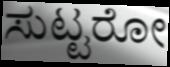
ಸುಟ್ಟರೋ